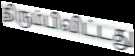
திரும்பிவிட்டது